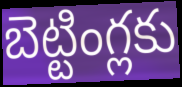
బెట్టింగ్లకు